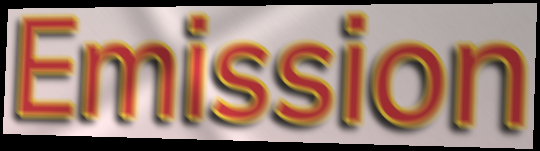
Emission